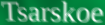
Tsarskoe